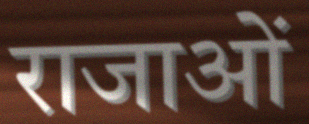
राजाओं